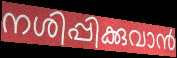
നശിപ്പിക്കുവാൻ